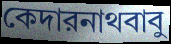
কেদারনাথবাবু